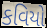
કવિયો